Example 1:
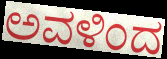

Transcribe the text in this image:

ಅವಳಿಂದ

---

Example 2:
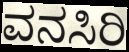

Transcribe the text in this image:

ವನಸಿರಿ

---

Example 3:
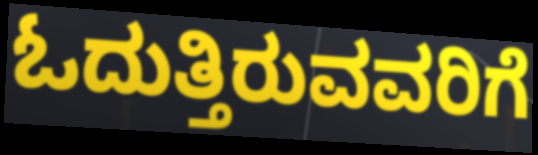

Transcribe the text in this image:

ಓದುತ್ತಿರುವವರಿಗೆ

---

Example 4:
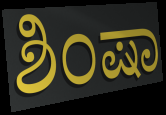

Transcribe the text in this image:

ಶಿಂಷಾ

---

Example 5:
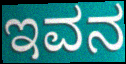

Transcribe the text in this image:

ಇವನ